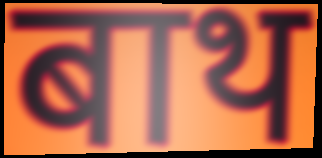
बाथ